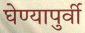
घेण्यापुर्वी